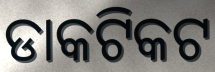
ଡାକଟିକଟ